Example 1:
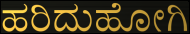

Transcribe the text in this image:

ಹರಿದುಹೋಗಿ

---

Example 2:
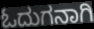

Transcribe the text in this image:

ಓದುಗನಾಗಿ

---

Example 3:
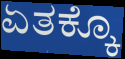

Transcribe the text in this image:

ಏತಕ್ಕೊ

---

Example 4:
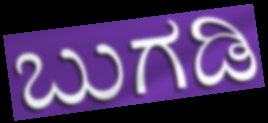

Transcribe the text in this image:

ಬುಗಡಿ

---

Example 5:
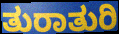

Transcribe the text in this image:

ತುರಾತುರಿ